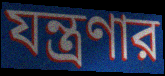
যন্ত্রণার